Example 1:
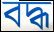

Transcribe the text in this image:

বদ্ধ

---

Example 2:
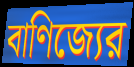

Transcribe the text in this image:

বাণিজ্যের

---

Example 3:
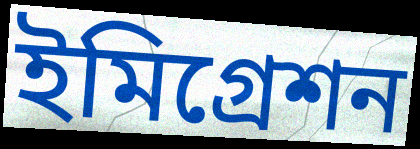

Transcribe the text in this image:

ইমিগ্রেশন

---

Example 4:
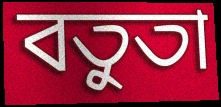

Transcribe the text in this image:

বতুতা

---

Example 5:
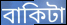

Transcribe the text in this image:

বাকিটা